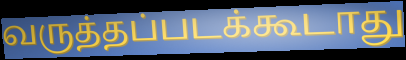
வருத்தப்படக்கூடாது